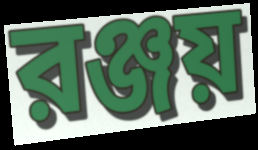
রঞ্জয়